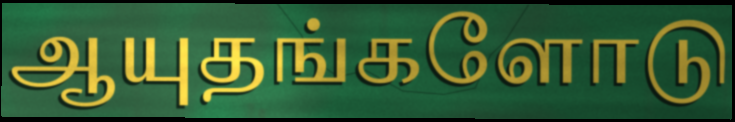
ஆயுதங்களோடு